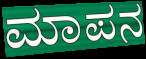
ಮಾಪನ